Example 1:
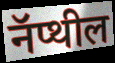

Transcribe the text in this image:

नॅप्थील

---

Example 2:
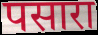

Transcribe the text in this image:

पसारा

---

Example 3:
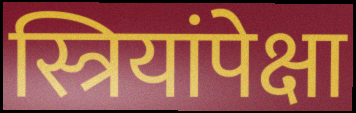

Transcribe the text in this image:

स्त्रियांपेक्षा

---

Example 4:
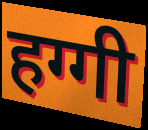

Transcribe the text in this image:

हग्गी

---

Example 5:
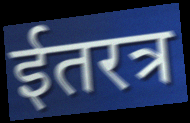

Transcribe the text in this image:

ईतरत्र